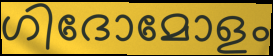
ഗിദോമോളം